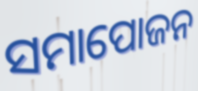
ସମାପୋଜନ